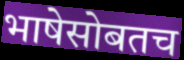
भाषेसोबतच